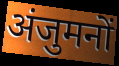
अंजुमनों